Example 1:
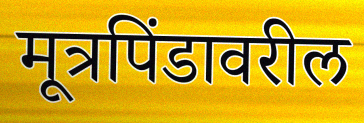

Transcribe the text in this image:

मूत्रपिंडावरील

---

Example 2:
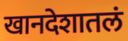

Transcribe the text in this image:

खानदेशातलं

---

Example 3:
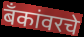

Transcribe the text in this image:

बँकांवरचे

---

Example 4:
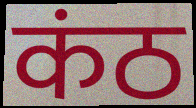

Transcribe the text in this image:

कंठ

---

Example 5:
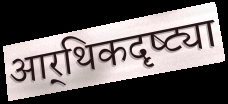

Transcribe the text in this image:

आर्थिकदृष्ट्या